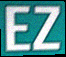
EZ